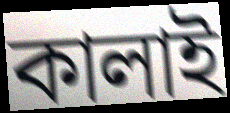
কালাই